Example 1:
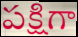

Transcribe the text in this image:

పక్షిగా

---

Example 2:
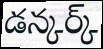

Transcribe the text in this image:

డన్కర్క్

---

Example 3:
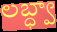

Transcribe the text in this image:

లబ్ధ్వా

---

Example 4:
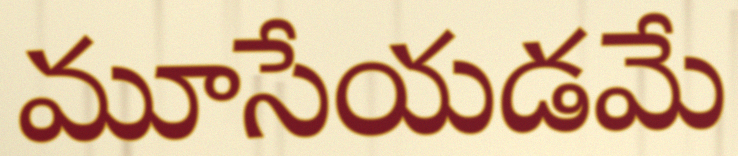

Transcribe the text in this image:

మూసేయడమే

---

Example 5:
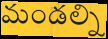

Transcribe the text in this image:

మండల్ని